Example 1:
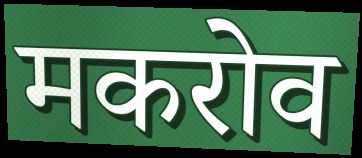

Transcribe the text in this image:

मकरोव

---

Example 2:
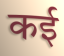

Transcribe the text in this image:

कई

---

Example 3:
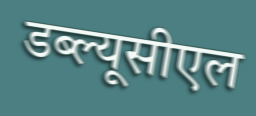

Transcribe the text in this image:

डब्ल्यूसीएल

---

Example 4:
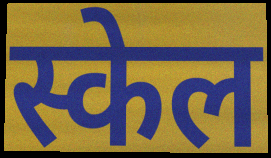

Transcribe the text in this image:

स्केल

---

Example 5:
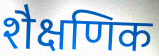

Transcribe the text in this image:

शैक्षणिक